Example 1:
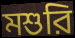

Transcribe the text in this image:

মশুরি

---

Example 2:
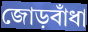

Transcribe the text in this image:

জোড়বাঁধা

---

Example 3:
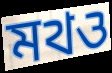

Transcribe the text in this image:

মথও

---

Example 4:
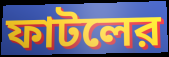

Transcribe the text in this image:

ফাটলের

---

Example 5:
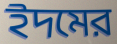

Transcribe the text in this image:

ইদমের